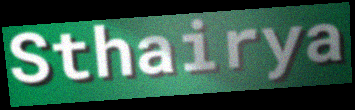
Sthairya